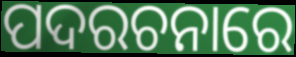
ପଦରଚନାରେ